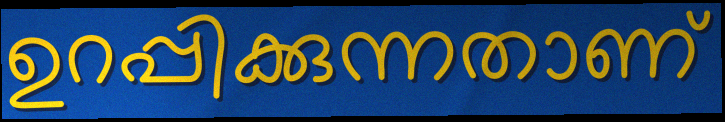
ഉറപ്പിക്കുന്നതാണ്